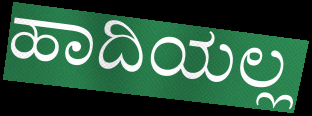
ಹಾದಿಯಲ್ಲ